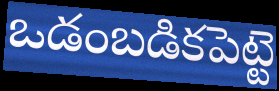
ఒడంబడికపెట్టె